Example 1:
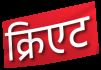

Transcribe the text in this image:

क्रिएट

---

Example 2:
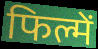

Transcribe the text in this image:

फिल्में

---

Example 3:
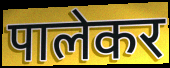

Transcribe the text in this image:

पालेकर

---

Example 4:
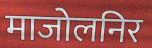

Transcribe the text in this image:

माजोलनिर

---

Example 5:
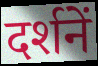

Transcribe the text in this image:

दर्शनें